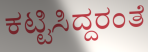
ಕಟ್ಟಿಸಿದ್ದರಂತೆ